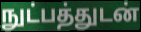
நுட்பத்துடன்